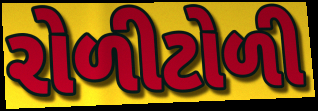
રોળીટોળી